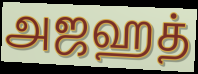
அஜஹத்